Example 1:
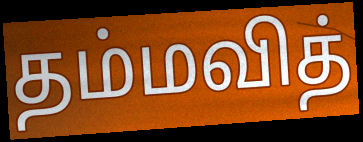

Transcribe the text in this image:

தம்மவித்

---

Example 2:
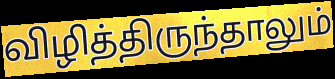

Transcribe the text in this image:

விழித்திருந்தாலும்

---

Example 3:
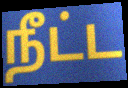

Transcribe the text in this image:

நீட்ட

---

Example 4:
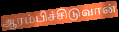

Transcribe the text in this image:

ஆரம்பிச்சிடுவான்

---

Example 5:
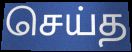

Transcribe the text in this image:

செய்த